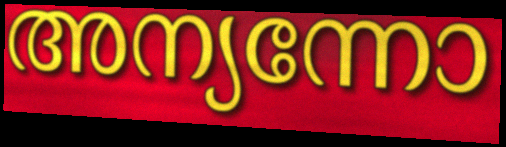
അന്യന്നോ